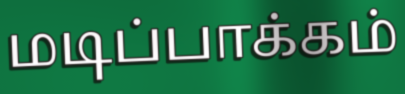
மடிப்பாக்கம்